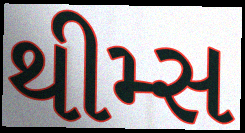
થીમ્સ